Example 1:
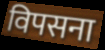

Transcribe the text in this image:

विपसना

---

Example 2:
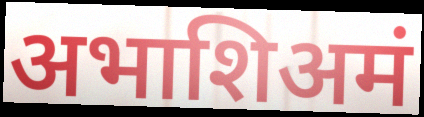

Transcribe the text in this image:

अभाशिअमं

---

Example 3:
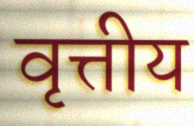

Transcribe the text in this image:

वृत्तीय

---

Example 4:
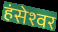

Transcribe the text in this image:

हंसेश्वर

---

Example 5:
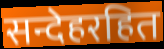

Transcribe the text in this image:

सन्देहरहित